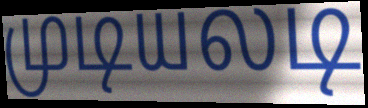
முடியலடி